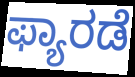
ಫ್ಯಾರಡೆ